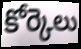
కోర్కెలు